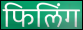
फिलिंग